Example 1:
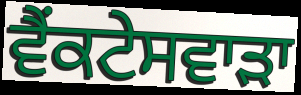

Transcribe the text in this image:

ਵੈਂਕਟੇਸਵਾੜਾ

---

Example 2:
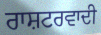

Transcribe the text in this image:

ਰਾਸ਼ਟਰਵਾਦੀ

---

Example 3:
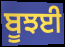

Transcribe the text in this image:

ਬੂਝਈ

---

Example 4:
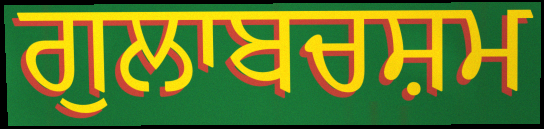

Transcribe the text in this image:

ਗੁਲਾਬਚਸ਼ਮ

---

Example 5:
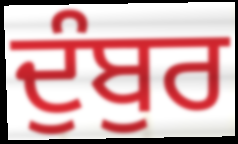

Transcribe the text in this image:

ਦੁੰਬੁਰ